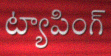
ట్యాపింగ్